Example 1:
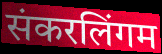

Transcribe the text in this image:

संकरलिंगम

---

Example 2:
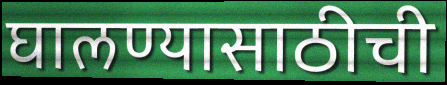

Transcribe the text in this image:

घालण्यासाठीची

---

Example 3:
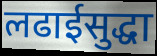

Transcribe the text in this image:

लढाईसुद्धा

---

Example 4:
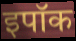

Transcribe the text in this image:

इपॉक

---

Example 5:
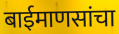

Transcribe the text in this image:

बाईमाणसांचा